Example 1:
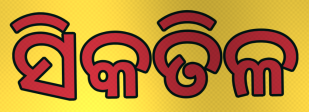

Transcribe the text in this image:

ସିକତିଳ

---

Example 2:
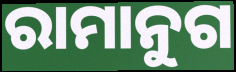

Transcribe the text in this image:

ରାମାନୁଗ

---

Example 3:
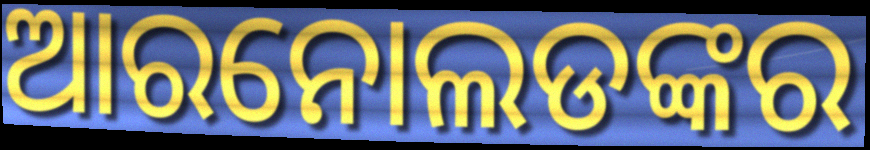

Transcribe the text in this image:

ଆରନୋଲଡଙ୍କର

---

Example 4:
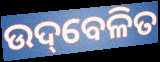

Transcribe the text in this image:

ଉଦ୍‌ବେଳିତ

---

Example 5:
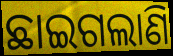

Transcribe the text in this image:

ଛାଇଗଲାଣି